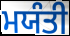
ਮਯੰਤੀ